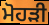
ਮੋਹੜੀ